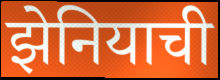
झेनियाची